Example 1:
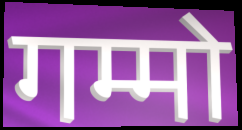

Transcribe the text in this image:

गम्मो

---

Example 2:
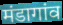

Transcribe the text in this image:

मंडागांव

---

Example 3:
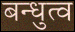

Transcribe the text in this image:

बन्धुत्व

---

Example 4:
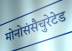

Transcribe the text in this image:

मोनोसंसैचुरेटेड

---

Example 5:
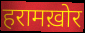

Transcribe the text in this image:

हरामख़ोर